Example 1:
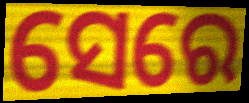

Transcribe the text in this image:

ସେରେ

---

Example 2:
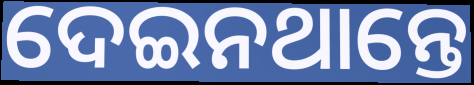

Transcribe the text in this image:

ଦେଇନଥାନ୍ତେ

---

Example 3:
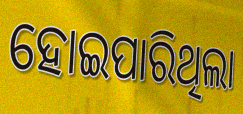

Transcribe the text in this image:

ହୋଇପାରିଥିଲା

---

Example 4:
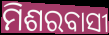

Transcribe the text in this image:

ମିଶରବାସୀ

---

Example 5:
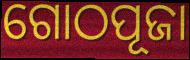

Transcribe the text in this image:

ଗୋଠପୂଜା